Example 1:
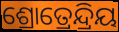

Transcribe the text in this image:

ଶ୍ରୋତ୍ରେନ୍ଦ୍ରିୟ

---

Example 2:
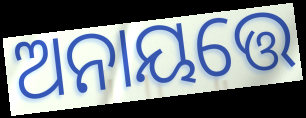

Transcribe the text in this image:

ଅନାୟତ୍ତେ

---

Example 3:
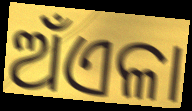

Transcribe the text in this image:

ଅଁଏଳା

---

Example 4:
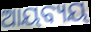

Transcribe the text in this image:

ଆୟବ୍ୟୟ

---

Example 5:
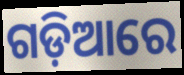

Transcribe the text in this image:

ଗଡ଼ିଆରେ